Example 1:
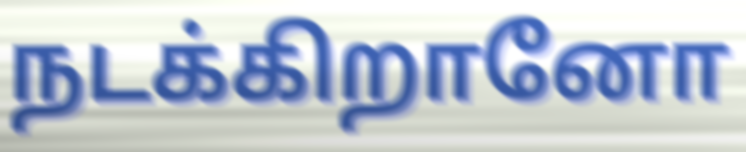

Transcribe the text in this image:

நடக்கிறானோ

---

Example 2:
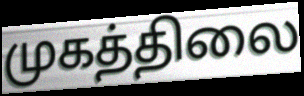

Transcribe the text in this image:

முகத்திலை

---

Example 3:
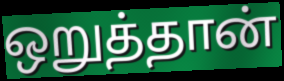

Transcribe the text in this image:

ஒறுத்தான்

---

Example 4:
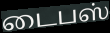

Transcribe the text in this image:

டைபஸ்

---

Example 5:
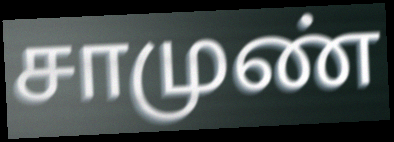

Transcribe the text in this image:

சாமுண்